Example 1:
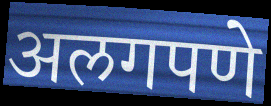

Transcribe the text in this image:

अलगपणे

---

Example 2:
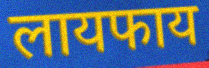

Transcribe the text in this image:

लायफाय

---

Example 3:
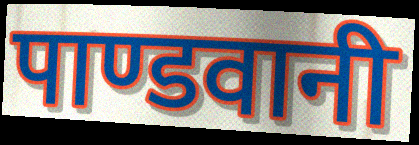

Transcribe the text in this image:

पाण्डवानी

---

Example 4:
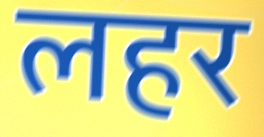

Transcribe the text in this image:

लहर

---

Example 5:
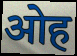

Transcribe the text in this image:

ओह